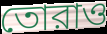
তোরাও